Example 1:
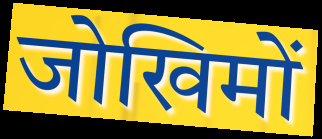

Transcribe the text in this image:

जोखिमों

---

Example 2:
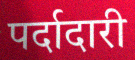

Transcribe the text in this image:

पर्दादारी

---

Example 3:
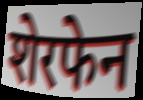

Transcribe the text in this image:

शेरफेन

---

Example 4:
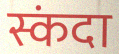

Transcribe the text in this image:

स्कंदा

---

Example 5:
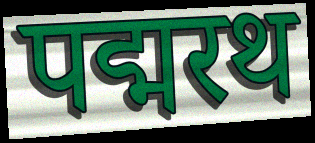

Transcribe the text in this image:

पद्मरथ